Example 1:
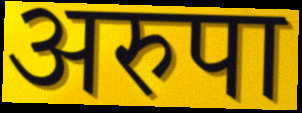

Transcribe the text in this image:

अरुपा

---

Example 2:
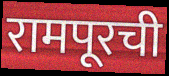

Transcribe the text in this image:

रामपूरची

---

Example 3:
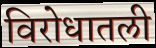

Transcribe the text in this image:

विरोधातली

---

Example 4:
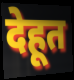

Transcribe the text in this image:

देहूत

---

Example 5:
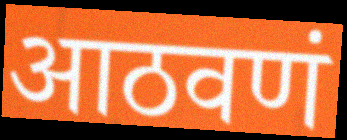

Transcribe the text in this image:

आठवणं